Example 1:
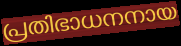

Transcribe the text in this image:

പ്രതിഭാധനനായ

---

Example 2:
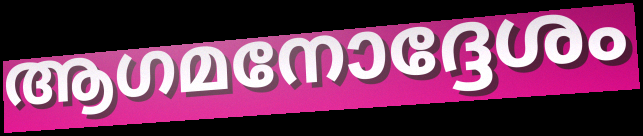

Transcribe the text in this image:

ആഗമനോദ്ദേശം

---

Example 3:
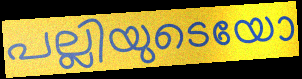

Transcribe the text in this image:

പല്ലിയുടെയോ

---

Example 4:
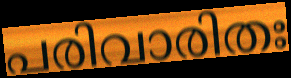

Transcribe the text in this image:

പരിവാരിതഃ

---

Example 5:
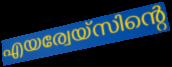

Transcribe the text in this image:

എയര്വേയ്സിന്റെ